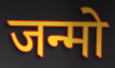
जन्मो